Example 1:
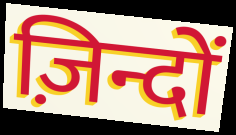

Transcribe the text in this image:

ज़िन्दों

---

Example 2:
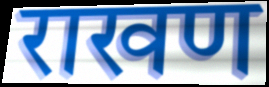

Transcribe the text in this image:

राखण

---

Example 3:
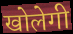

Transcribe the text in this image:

खोलेगी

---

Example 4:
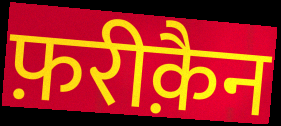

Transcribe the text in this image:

फ़रीक़ैन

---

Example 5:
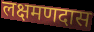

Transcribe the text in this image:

लक्षमणदास